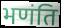
भणंति